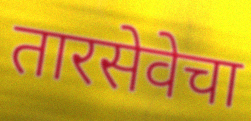
तारसेवेचा